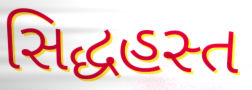
સિદ્ધહસ્ત